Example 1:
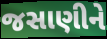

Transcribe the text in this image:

જસાણીને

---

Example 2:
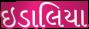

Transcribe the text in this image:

ઇડાલિયા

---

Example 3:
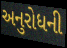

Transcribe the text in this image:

અનુરોધની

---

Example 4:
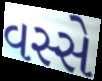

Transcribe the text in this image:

વસ્સે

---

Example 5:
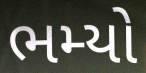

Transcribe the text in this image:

ભમ્યો